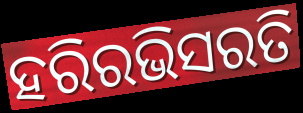
ହରିରଭିସରତି